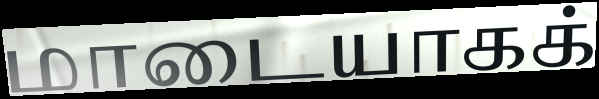
மாடையாகக்